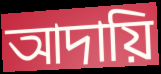
আদায়ি